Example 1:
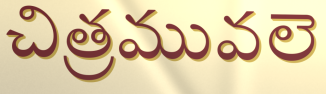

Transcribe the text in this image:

చిత్రమువలె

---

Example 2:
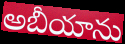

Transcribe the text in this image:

అబీయాను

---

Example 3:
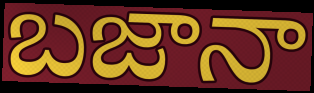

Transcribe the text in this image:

బజానా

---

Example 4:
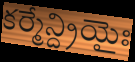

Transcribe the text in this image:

కర్మేన్ద్రియైః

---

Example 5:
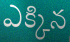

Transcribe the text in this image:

ఎక్కిన